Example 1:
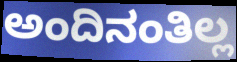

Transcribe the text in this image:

ಅಂದಿನಂತಿಲ್ಲ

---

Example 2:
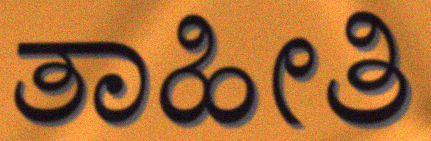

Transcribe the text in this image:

ತಾಹೀತಿ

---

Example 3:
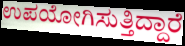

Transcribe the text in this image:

ಉಪಯೋಗಿಸುತ್ತಿದ್ದಾರೆ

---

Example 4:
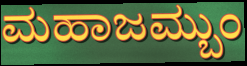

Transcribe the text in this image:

ಮಹಾಜಮ್ಬುಂ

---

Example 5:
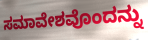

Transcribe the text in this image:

ಸಮಾವೇಶವೊಂದನ್ನು